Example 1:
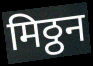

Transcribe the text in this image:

मिठ्ठन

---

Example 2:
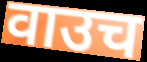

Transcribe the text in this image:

वाउच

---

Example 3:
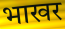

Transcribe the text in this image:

भाखर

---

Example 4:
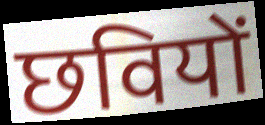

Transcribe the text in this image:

छवियों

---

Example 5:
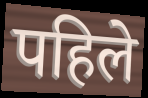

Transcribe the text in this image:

पहिले